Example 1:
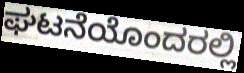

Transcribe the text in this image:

ಘಟನೆಯೊಂದರಲ್ಲಿ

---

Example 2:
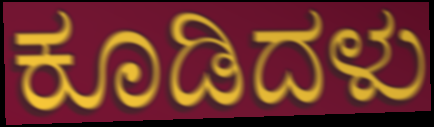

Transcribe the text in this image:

ಕೂಡಿದಳು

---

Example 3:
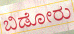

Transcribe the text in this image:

ಬಿಡೋರು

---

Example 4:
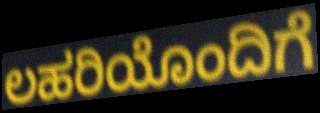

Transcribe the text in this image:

ಲಹರಿಯೊಂದಿಗೆ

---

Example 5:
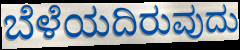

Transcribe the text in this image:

ಬೆಳೆಯದಿರುವುದು